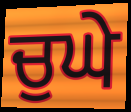
ਚੁਘੇ